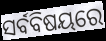
ସର୍ବବିଷୟରେ